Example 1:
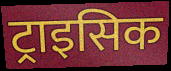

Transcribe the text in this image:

ट्राइसिक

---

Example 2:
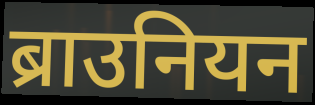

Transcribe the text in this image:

ब्राउनियन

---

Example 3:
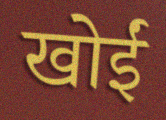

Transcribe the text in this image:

खोईं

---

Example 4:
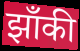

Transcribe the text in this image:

झाँकी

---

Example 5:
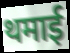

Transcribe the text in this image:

थमाई